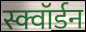
स्क्वॉर्डन